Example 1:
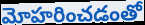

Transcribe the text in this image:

మోహరించడంతో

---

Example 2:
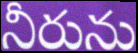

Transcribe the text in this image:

నీరును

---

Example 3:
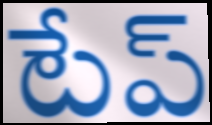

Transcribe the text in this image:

టేప్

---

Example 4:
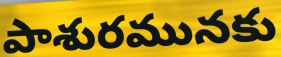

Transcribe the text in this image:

పాశురమునకు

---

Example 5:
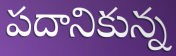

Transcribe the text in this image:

పదానికున్న